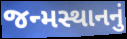
જન્મસ્થાનનું